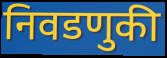
निवडणुकी